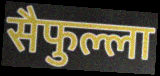
सैफुल्ला